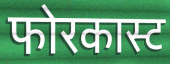
फोरकास्ट